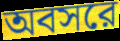
অবসরে